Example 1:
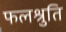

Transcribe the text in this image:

फलश्रुति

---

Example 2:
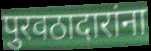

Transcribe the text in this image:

पुरवठादारांना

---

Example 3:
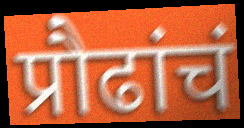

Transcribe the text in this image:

प्रौढांचं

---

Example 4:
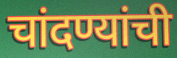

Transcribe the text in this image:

चांदण्यांची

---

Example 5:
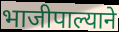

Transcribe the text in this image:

भाजीपाल्याने